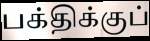
பக்திக்குப்